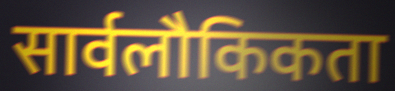
सार्वलौकिकता